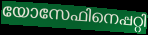
യോസേഫിനെപ്പറ്റി